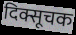
दिक्सूचक